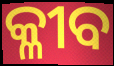
କ୍ଳୀବ